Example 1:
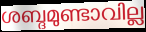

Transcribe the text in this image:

ശബ്ദമുണ്ടാവില്ല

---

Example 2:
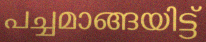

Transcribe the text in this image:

പച്ചമാങ്ങയിട്ട്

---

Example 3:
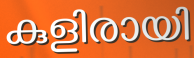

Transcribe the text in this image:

കുളിരായി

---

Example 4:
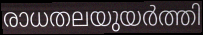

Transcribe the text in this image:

രാധതലയുയർത്തി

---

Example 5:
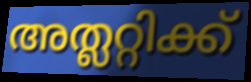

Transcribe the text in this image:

അത്ലറ്റിക്ക്